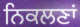
ਨਿਕਲਣਾਂ